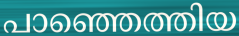
പാഞ്ഞെത്തിയ